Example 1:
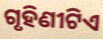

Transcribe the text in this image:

ଗୃହିଣୀଟିଏ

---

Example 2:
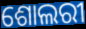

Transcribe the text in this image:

ଶୋଲରୀ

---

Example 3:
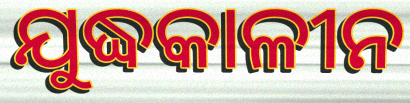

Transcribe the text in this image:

ଯୁଦ୍ଧକାଳୀନ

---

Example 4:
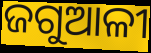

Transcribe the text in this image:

ଜଗୁଆଳୀ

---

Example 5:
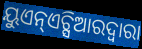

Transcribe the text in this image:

ୟୁଏନ୍ଏଚ୍ସିଆରଦ୍ୱାରା